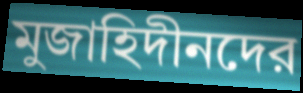
মুজাহিদীনদের